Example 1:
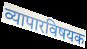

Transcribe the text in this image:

व्यापारविषयक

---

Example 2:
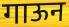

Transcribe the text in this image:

गाऊन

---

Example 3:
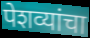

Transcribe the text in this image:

पेशव्यांचा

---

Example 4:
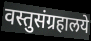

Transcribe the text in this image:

वस्तुसंग्रहालये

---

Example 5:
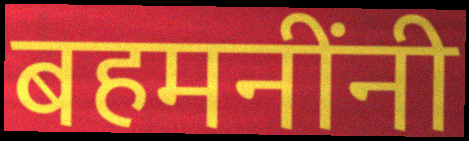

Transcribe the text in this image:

बहमनींनी